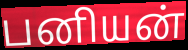
பனியன்